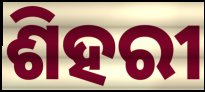
ଶିହରୀ